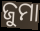
ଜୁମା